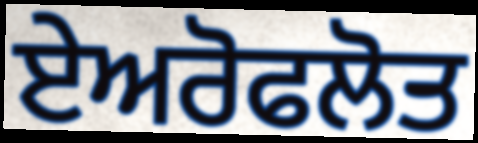
ਏਅਰੋਫਲੋਤ